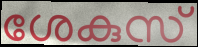
ശേകുസ്